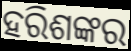
ହରିଶଙ୍କର